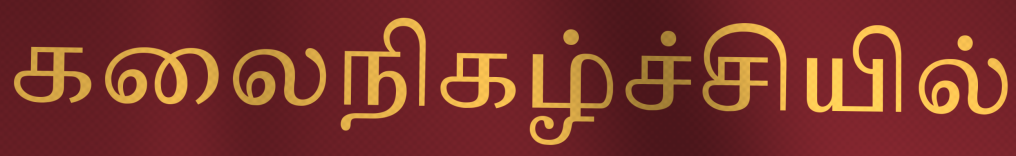
கலைநிகழ்ச்சியில்